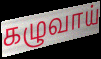
கழுவாய்